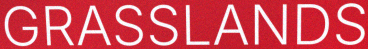
GRASSLANDS